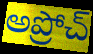
అప్రోచ్